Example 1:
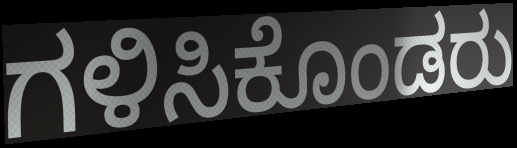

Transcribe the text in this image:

ಗಳಿಸಿಕೊಂಡರು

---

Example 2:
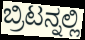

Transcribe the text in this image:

ಬ್ರಿಟನ್ನಲ್ಲಿ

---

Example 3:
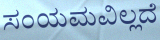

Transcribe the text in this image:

ಸಂಯಮವಿಲ್ಲದೆ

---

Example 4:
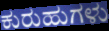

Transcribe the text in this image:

ಕುರುಹುಗಳು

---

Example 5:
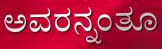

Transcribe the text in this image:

ಅವರನ್ನಂತೂ